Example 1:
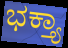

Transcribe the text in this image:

ಭಕ್ತ್ಯಾ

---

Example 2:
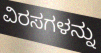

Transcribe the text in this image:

ವಿರಸಗಳನ್ನು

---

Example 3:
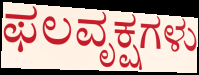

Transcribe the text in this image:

ಫಲವೃಕ್ಷಗಳು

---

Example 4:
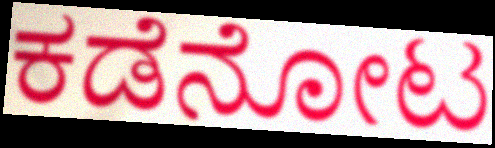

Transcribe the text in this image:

ಕಡೆನೋಟ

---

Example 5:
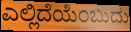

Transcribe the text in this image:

ಎಲ್ಲಿದೆಯೆಂಬುದು